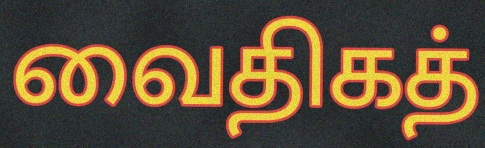
வைதிகத்